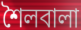
শৈলবালা